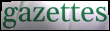
gazettes